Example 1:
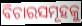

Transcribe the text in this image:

ବିଚାରସମୂହକୁ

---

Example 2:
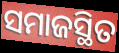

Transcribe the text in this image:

ସମାଜସ୍ଥିତ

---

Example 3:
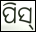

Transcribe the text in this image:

ପିସ୍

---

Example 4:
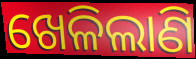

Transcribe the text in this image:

ଖେଳିଲାଣି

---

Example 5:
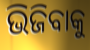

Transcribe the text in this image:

ଭିଜିବାକୁ